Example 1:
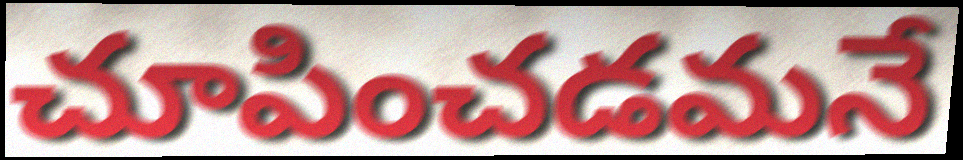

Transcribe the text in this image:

చూపించడమనే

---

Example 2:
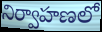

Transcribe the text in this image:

నిర్వాహణలో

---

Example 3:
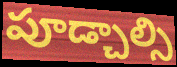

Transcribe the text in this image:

పూడ్చాల్సి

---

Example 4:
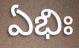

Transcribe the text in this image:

ఏభిః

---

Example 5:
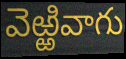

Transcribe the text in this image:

వెఱ్ఱివాగు